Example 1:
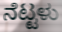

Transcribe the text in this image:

ನೆಟ್ಟಳು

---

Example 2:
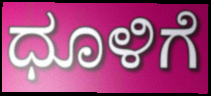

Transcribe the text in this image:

ಧೂಳಿಗೆ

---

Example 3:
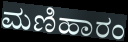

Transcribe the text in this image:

ಮಣಿಹಾರಂ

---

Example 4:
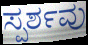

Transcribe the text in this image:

ಸ್ಪರ್ಶವು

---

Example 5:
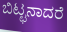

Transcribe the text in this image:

ಬಿಟ್ಟನಾದರೆ